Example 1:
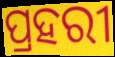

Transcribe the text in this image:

ପ୍ରହରୀ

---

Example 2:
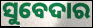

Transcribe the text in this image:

ସୁବେଦାର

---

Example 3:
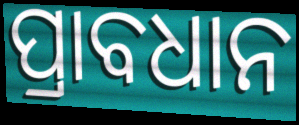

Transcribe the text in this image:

ପ୍ରାବଧାନ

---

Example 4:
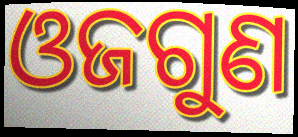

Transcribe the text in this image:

ଓଜଗୁଣ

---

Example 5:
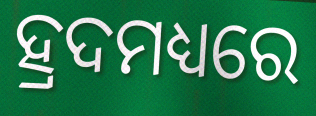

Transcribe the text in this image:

ହ୍ରଦମଧ୍ୟରେ